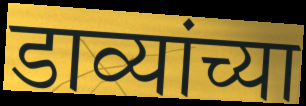
डाव्यांच्या